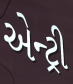
એન્‍ટ્રી